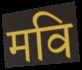
मवि